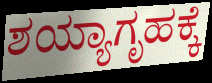
ಶಯ್ಯಾಗೃಹಕ್ಕೆ